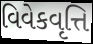
વિવેકવૃત્તિ